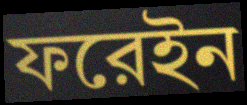
ফরেইন